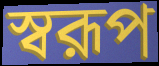
স্বরূপ